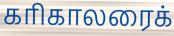
கரிகாலரைக்